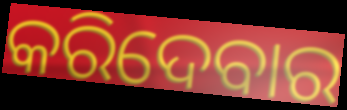
କରିଦେବାର